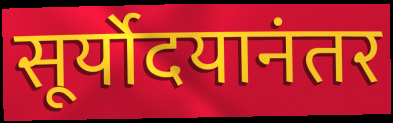
सूर्योदयानंतर